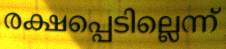
രക്ഷപ്പെടില്ലെന്ന്